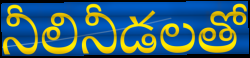
నీలినీడలతో